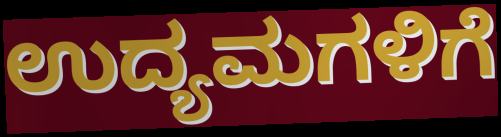
ಉದ್ಯಮಗಳಿಗೆ